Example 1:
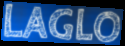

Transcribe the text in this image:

LAGLO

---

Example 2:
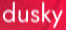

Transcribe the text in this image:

dusky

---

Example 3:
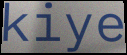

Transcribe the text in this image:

kiye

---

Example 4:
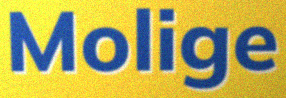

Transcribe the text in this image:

Molige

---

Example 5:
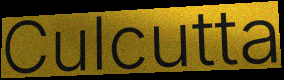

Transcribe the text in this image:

Culcutta